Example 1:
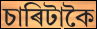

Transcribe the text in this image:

চাৰিটাকৈ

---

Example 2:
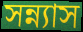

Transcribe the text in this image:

সন্ন্যাস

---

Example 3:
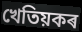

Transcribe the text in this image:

খেতিয়কৰ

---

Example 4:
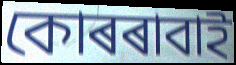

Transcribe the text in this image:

কোৰৰাবাই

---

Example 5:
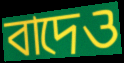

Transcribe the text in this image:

বাদেও